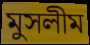
মুসলীম